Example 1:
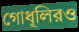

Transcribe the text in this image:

গোধূলিরও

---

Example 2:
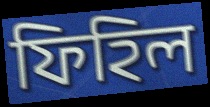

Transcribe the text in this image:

ফিহিল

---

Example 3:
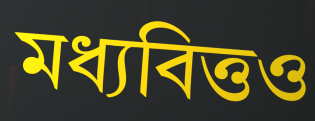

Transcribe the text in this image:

মধ্যবিত্তও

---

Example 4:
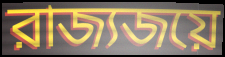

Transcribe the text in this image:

রাজ্যজয়ে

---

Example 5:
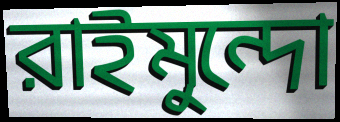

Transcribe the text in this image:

রাইমুন্দো